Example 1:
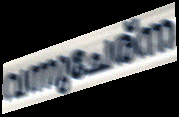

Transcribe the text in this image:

വന്നുചേര്ന്ന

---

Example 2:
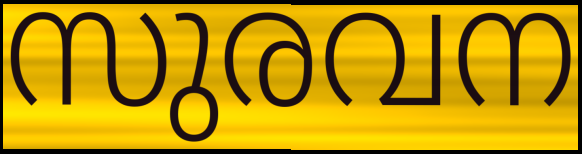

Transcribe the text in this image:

സുരവന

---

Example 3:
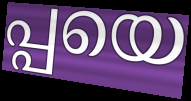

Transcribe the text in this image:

പ്പയെ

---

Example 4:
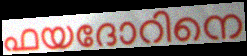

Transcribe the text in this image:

ഫയദോറിനെ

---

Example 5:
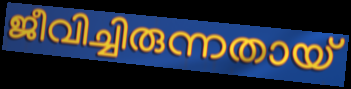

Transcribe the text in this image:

ജീവിച്ചിരുന്നതായ്